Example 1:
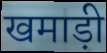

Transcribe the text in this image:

खमाड़ी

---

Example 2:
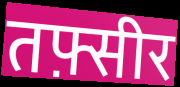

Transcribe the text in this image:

तफ़्सीर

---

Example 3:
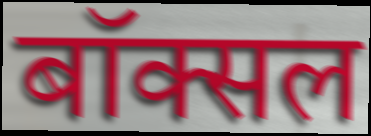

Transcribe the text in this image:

बॉक्सल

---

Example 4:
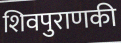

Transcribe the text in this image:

शिवपुराणकी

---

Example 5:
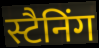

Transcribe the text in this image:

स्टैनिंग